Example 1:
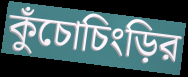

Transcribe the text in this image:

কুঁচোচিংড়ির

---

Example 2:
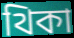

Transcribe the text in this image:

থিকা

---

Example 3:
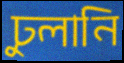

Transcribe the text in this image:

ঢুলানি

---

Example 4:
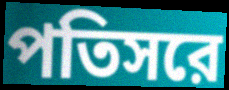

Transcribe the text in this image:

পতিসরে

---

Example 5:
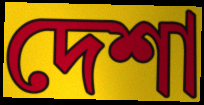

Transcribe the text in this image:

দেশা